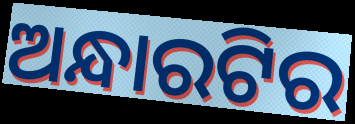
ଅନ୍ଧାରଟିର